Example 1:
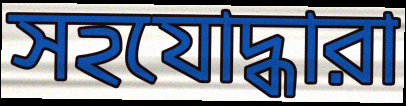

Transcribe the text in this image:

সহযোদ্ধারা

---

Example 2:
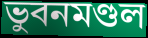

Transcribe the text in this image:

ভুবনমণ্ডল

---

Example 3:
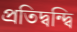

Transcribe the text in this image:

প্রতিদ্বন্দ্বি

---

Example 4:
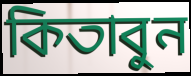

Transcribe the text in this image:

কিতাবুন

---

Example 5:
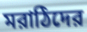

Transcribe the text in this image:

মরাঠিদের